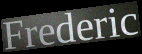
Frederic